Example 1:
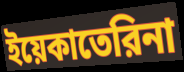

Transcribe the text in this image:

ইয়েকাতেরিনা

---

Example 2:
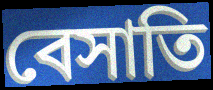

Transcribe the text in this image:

বেসাতি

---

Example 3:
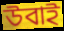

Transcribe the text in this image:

উবাই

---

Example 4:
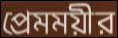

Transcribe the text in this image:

প্রেমময়ীর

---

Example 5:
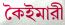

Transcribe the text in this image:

কৈইমারী